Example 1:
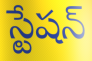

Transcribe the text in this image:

స్టేషన్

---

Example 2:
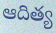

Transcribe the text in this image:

ఆదిత్య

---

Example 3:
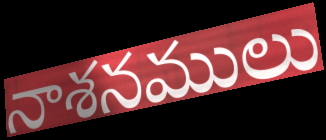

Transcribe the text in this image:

నాశనములు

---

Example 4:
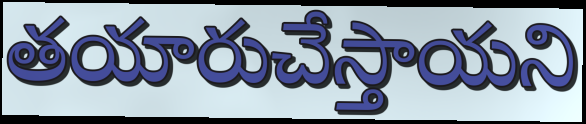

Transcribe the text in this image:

తయారుచేస్తాయని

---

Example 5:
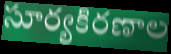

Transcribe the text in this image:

సూర్యకిరణాల